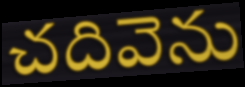
చదివెను